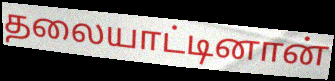
தலையாட்டினான்